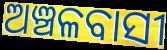
ଅଞ୍ଚଳବାସୀ